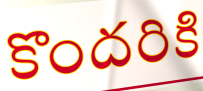
కొందరికి